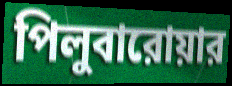
পিলুবারোয়ার